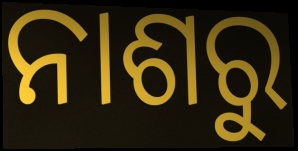
ନାଶରୁ